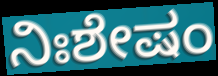
ನಿಃಶೇಷಂ